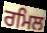
ਰਮਿਲ